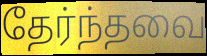
தேர்ந்தவை